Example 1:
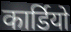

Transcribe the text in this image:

कार्डियो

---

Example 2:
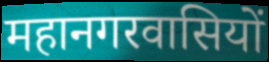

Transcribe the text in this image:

महानगरवासियों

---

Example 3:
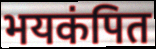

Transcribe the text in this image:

भयकंपित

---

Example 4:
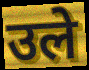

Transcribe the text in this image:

उले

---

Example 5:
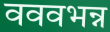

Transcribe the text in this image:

वववभन्न